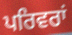
ਪਰਿਵਰਾਂ